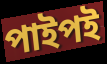
পাইপই